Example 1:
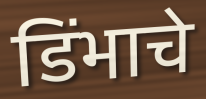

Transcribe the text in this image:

डिंभाचे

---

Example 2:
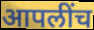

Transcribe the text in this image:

आपलींच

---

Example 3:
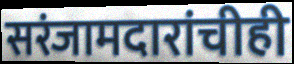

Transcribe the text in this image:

सरंजामदारांचीही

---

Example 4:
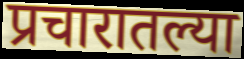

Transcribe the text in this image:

प्रचारातल्या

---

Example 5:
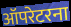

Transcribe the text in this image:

ऑपरेटरना